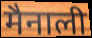
मैनाली